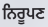
ਨਿਰੂਪਣ